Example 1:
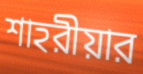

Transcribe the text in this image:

শাহরীয়ার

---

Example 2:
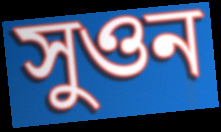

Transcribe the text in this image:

সুওন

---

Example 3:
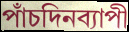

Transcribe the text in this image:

পাঁচদিনব্যাপী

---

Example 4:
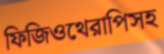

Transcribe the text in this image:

ফিজিওথেরাপিসহ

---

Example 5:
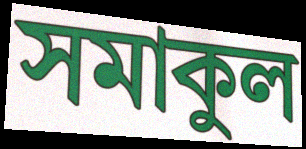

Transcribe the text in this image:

সমাকুল